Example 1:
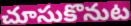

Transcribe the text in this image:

చూసుకొనుట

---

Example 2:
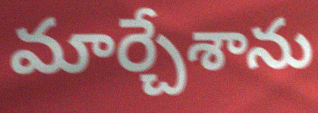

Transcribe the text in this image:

మార్చేశాను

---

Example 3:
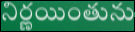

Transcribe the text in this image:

నిర్ణయింతును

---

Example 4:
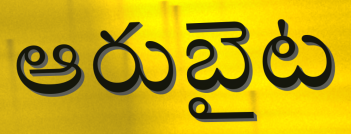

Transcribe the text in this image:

ఆరుబైట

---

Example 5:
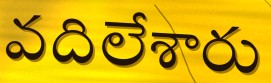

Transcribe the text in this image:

వదిలేశారు